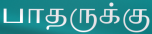
பாதருக்கு